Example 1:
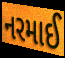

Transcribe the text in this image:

નરમાઈ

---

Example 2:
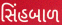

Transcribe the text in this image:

સિંહબાળ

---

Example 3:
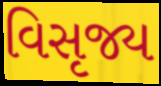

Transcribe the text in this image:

વિસૃજ્ય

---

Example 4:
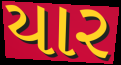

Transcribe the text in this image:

યાર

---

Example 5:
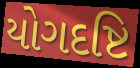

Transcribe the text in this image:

યોગદષ્ટિ